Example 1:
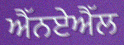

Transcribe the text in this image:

ਐੱਨਏਐੱਲ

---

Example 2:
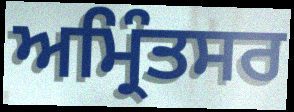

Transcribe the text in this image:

ਅਮ੍ਰਿੰਤਸਰ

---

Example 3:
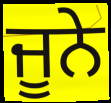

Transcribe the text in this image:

ਜੂਨੇ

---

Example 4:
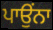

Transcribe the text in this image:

ਪਾਉਂਨਾ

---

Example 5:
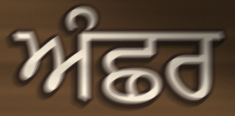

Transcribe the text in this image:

ਅੰਛਰ